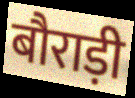
बौराड़ी